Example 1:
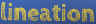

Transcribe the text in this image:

lineation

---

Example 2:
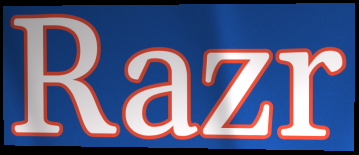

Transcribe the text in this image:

Razr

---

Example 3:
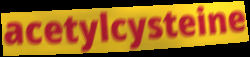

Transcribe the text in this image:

acetylcysteine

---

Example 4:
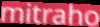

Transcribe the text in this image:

mitraho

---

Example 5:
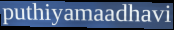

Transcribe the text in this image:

puthiyamaadhavi